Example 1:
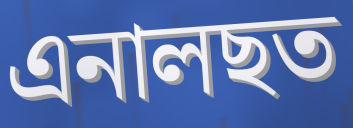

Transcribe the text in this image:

এনালছত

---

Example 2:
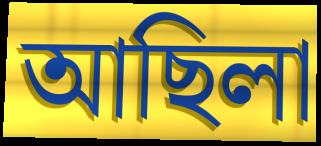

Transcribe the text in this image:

আছিলা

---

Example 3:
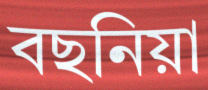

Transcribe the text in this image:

বছনিয়া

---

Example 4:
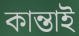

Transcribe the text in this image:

কান্তাই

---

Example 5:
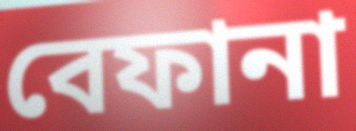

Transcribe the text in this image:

বেফানা